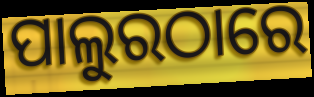
ପାଲୁରଠାରେ